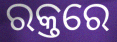
ରକ୍ତରେ